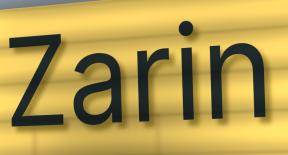
Zarin